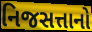
નિજસત્તાનો